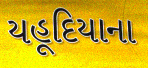
યહૂદિયાના